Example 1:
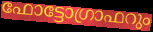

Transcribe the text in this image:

ഫോട്ടോഗ്രാഫറും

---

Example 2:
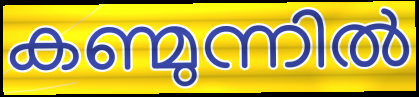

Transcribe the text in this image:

കണ്മുന്നിൽ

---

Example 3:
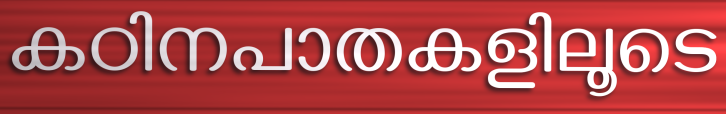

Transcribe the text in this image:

കഠിനപാതകളിലൂടെ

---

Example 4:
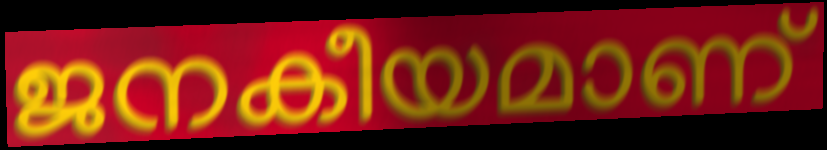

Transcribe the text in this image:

ജനകീയമാണ്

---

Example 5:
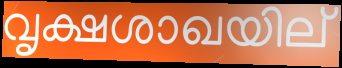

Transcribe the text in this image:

വൃക്ഷശാഖയില്